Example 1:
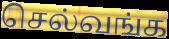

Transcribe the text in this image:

செல்வங்க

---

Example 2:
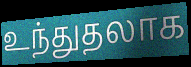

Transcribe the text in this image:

உந்துதலாக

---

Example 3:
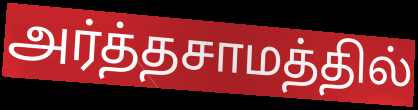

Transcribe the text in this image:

அர்த்தசாமத்தில்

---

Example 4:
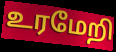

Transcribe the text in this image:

உரமேறி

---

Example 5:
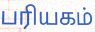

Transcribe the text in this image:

பரியகம்